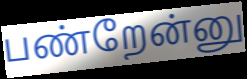
பண்றேன்னு